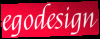
egodesign